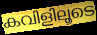
കവിളിലൂടെ